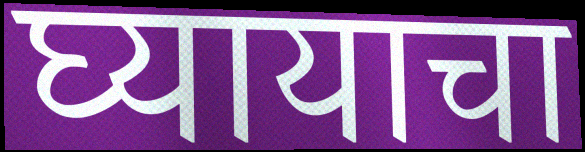
घ्यायाचा